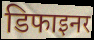
डिफाइनर